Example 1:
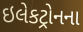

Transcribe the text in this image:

ઇલેકટ્રોનના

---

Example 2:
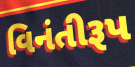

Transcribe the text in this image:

વિનંતીરૂપ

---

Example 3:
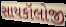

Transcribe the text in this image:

સાયકૉલોજી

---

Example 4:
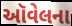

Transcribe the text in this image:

ઑવેલના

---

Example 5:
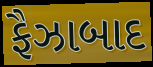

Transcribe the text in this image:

ફૈઝાબાદ